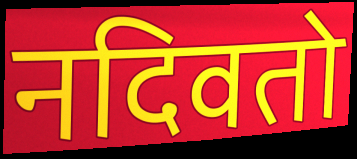
नदिवतो